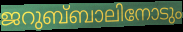
ജറുബ്‌ബാലിനോടും